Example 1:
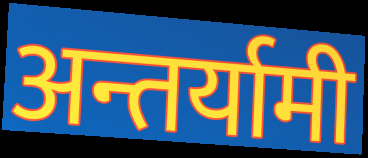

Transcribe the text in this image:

अन्‍तर्यामी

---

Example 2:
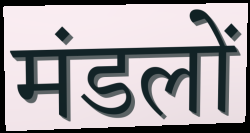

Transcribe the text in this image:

मंडलों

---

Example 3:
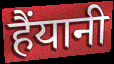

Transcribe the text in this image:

हैंयानी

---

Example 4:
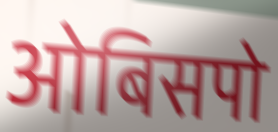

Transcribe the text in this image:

ओबिसपो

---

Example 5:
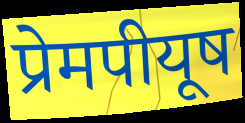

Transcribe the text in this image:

प्रेमपीयूष